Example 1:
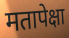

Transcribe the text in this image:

मतापेक्षा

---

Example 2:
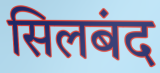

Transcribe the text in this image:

सिलबंद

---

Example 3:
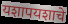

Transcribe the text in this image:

यशापयशाचे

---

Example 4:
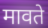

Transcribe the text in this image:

मावते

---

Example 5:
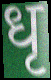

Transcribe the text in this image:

धृ